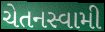
ચેતનસ્વામી